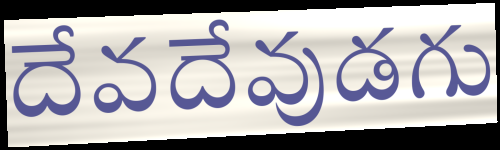
దేవదేవుడగు